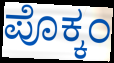
ಪೊಕ್ಕಂ